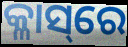
କ୍ଳାସ୍‌ରେ